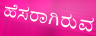
ಹೆಸರಾಗಿರುವ